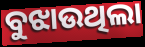
ବୁଝାଉଥିଲା